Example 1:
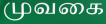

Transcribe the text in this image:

முவகை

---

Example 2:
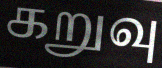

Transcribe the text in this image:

கறுவு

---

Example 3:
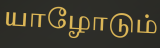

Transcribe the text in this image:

யாழோடும்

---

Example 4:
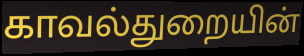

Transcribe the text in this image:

காவல்துறையின்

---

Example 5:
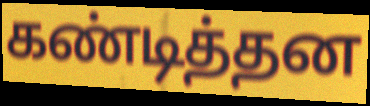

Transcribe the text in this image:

கண்டித்தன